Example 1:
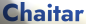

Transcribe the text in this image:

Chaitar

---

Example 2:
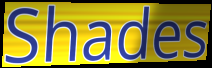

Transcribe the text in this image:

Shades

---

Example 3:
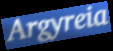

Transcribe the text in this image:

Argyreia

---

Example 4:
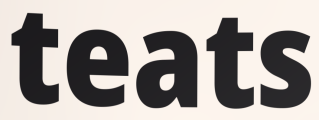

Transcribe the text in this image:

teats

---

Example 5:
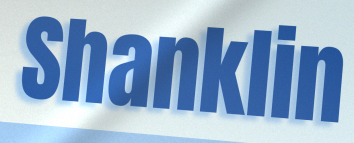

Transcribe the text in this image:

Shanklin